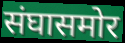
संघासमोर